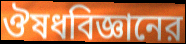
ঔষধবিজ্ঞানের